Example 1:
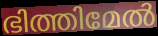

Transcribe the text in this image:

ഭിത്തിമേൽ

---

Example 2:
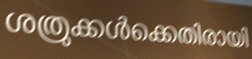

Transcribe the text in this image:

ശത്രുക്കൾക്കെതിരായി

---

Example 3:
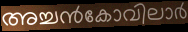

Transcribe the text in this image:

അച്ചൻകോവിലാർ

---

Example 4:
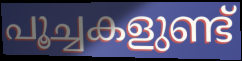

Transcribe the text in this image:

പൂച്ചകളുണ്ട്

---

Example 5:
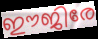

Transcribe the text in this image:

ഈജിരേ